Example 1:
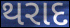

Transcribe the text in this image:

થરાદ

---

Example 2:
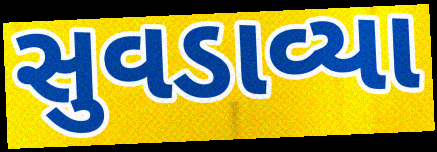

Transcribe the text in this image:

સુવડાવ્યા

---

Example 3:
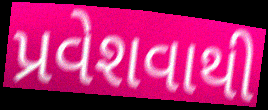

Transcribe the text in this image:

પ્રવેશવાથી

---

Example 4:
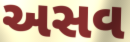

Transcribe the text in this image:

અસવ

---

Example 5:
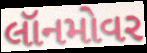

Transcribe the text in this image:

લૉનમોવર